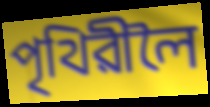
পৃথিৱীলৈ